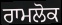
ਰਾਮਲੋਕ